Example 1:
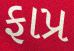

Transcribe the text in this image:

ફાપ્ર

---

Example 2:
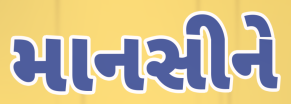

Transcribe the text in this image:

માનસીને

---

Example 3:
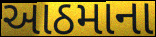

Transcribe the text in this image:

આઠમાના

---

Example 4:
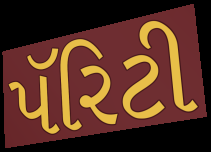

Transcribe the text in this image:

પૅરિટી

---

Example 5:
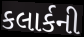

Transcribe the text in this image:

કલાર્કની